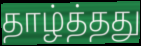
தாழ்த்தது